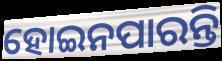
ହୋଇନପାରନ୍ତି